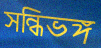
সন্ধিভঙ্গ